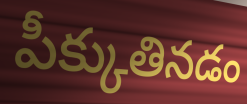
పీక్కుతినడం